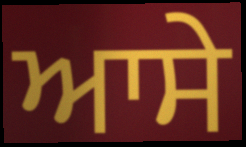
ਆਸੇ